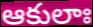
ఆకులాః